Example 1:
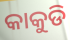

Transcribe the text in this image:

କାକୁଡି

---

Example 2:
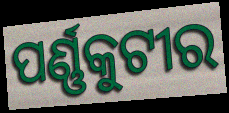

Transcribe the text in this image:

ପର୍ଣ୍ଣକୁଟୀର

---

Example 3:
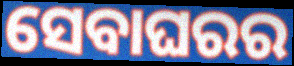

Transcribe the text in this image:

ସେବାଘରର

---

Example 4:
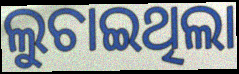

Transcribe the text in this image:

ଲୁଚାଇଥିଲା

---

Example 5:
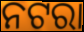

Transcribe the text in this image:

ନଟରା